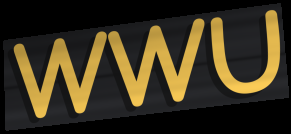
WWU